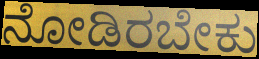
ನೋಡಿರಬೇಕು